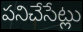
పనిచేసేట్లు